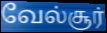
வேல்சூர்